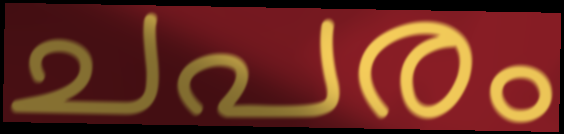
ചപരം